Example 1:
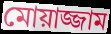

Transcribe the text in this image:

মোয়াজ্জাম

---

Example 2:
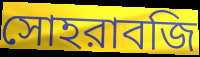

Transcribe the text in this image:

সোহরাবজি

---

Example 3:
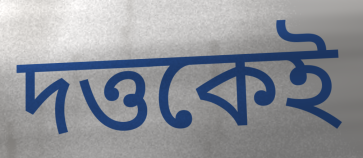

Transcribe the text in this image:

দত্তকেই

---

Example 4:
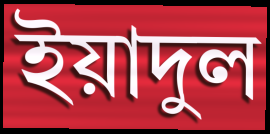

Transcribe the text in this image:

ইয়াদুল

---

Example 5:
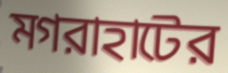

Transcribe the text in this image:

মগরাহাটের